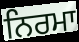
ਨਿਰਮਾ